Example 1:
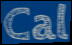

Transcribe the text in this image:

Cal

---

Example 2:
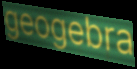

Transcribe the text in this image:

geogebra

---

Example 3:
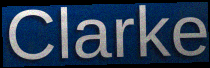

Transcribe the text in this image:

Clarke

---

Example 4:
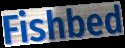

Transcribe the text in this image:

Fishbed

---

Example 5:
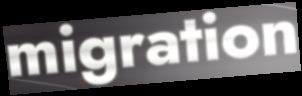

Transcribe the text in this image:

migration